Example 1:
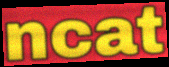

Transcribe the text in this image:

ncat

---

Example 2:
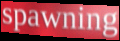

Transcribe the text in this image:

spawning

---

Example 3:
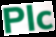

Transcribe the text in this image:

Plc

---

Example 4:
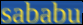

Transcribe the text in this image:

sababu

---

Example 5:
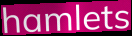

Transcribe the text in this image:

hamlets